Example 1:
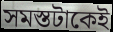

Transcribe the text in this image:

সমস্তটাকেই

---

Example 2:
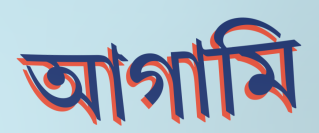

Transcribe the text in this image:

আগামি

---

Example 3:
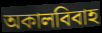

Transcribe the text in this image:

অকালবিবাহ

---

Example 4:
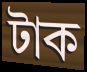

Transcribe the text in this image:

টাক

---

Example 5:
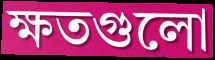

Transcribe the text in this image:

ক্ষতগুলো